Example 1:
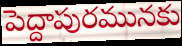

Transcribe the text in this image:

పెద్దాపురమునకు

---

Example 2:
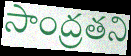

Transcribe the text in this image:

సాంద్రతని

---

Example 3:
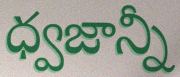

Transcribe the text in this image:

ధ్వజాన్నీ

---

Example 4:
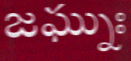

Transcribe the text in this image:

జఘ్నుః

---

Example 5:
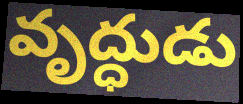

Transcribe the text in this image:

వృద్ధుడు